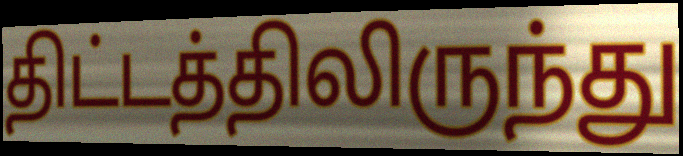
திட்டத்திலிருந்து